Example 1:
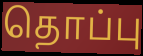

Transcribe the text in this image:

தொப்பு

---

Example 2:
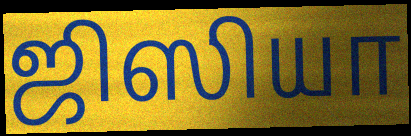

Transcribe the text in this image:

ஜிஸியா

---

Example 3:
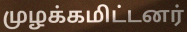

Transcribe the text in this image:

முழக்கமிட்டனர்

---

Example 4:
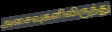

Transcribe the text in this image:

அசைவுகளிலிருந்து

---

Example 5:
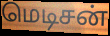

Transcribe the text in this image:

மெடிசன்